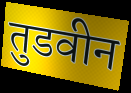
तुडवीन